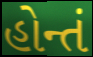
હોન્તં